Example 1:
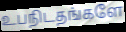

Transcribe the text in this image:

உபநிடதங்களே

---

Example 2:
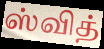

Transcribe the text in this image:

ஸ்வித்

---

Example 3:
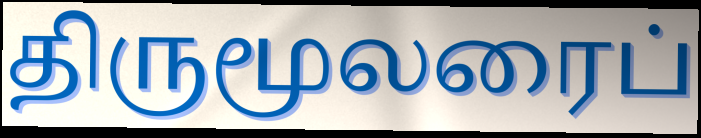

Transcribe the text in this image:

திருமூலரைப்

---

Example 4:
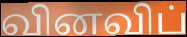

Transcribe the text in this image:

வினவிப்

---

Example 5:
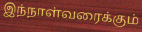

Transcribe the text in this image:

இந்நாள்வரைக்கும்